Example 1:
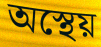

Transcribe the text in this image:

অস্থেয়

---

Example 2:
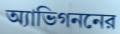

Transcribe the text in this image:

অ্যাভিগননের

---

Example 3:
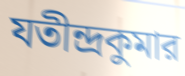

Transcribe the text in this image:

যতীন্দ্রকুমার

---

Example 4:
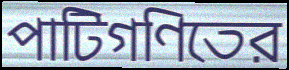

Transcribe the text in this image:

পাটিগণিতের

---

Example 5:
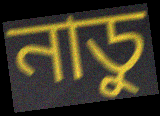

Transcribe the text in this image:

নাডু